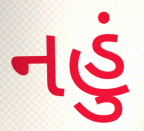
નહું